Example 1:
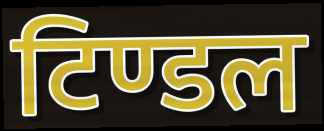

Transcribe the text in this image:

टिण्डल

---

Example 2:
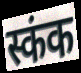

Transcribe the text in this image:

स्कंक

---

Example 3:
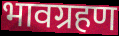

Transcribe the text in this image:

भावग्रहण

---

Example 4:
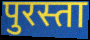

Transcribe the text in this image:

पुरस्ता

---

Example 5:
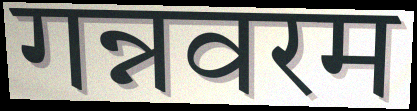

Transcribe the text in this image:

गन्नवरम